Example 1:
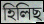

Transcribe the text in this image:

হিলিছ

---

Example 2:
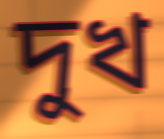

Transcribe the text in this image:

দুখ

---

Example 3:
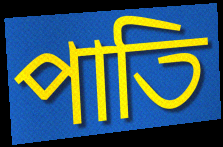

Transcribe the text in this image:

পাতি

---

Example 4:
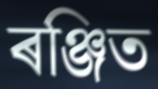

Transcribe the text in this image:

ৰঞ্জিত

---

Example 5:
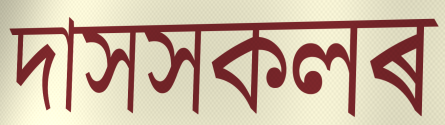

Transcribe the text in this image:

দাসসকলৰ